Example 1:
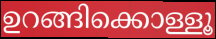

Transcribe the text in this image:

ഉറങ്ങിക്കൊള്ളൂ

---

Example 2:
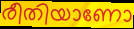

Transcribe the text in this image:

രീതിയാണോ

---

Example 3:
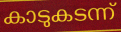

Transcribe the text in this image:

കാടുകടന്ന്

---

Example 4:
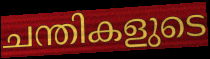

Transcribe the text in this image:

ചന്തികളുടെ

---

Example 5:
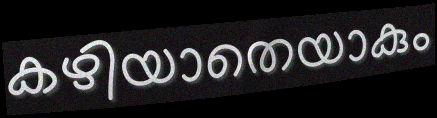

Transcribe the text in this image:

കഴിയാതെയാകും